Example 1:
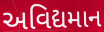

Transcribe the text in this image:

અવિદ્યમાન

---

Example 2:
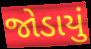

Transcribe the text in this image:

જોડાયું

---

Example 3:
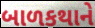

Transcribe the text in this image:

બાળકથાને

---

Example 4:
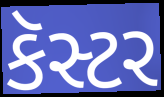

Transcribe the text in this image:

કૅસ્ટર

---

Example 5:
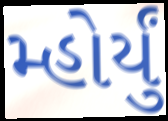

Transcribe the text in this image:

મ્હોર્યું